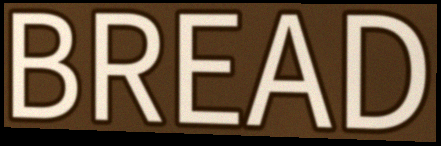
BREAD